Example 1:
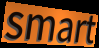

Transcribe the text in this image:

smart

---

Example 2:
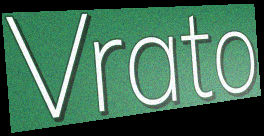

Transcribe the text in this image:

Vrato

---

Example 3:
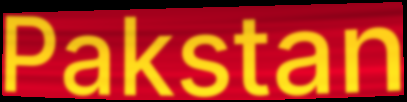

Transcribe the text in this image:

Pakstan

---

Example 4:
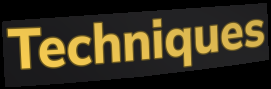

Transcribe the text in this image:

Techniques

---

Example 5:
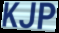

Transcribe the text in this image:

KJP